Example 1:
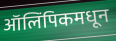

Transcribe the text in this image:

ऑलिंपिकमधून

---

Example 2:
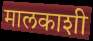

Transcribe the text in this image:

मालकाशी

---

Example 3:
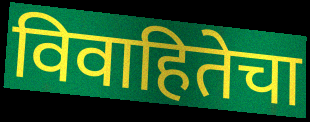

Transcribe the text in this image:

विवाहितेचा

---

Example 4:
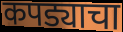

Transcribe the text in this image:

कपड्याचा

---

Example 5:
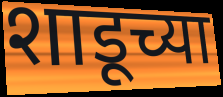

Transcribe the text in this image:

शाडूच्या